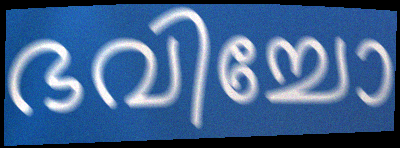
ഭവിച്ചോ